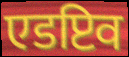
एडप्टिव